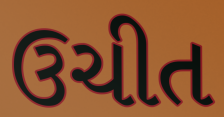
ઉચીત